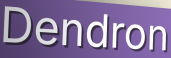
Dendron